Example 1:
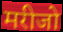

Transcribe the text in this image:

मरीजो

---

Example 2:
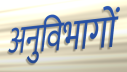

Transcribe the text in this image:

अनुविभागों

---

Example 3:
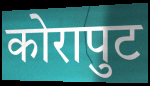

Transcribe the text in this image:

कोरापुट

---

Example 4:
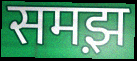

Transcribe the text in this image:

समझ़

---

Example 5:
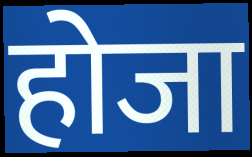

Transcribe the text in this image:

होजा